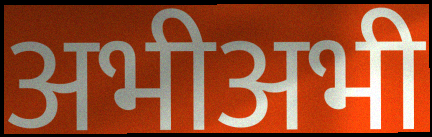
अभीअभी